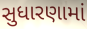
સુધારણામાં